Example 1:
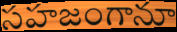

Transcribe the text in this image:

సహజంగానూ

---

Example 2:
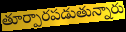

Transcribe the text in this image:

తూర్పారపడుతున్నారు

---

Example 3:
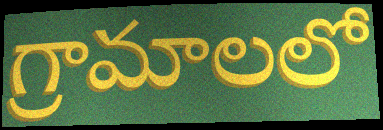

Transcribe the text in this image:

గ్రామాలలో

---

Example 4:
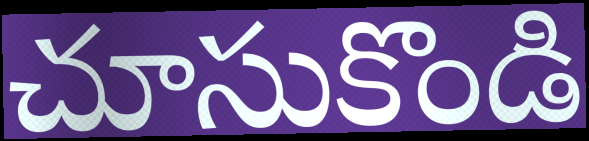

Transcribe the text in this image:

చూసుకొండి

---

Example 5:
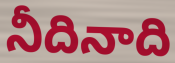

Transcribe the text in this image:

నీదినాది